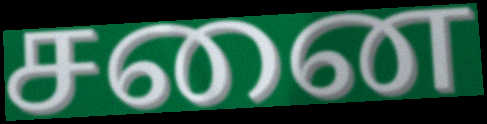
சனை